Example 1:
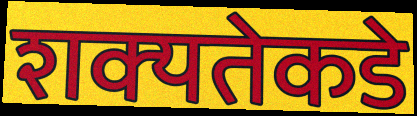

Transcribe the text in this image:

शक्यतेकडे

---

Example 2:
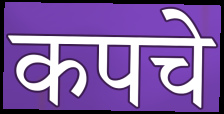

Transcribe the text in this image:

कपचे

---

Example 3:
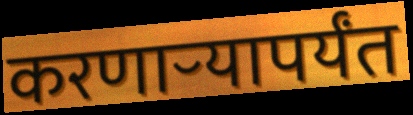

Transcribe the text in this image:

करणाऱ्यापर्यंत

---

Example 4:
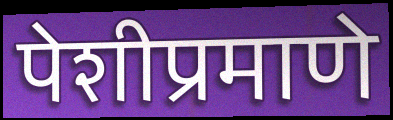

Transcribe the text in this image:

पेशीप्रमाणे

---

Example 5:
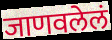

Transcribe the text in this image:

जाणवलेलं